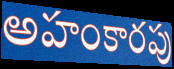
అహంకారపు